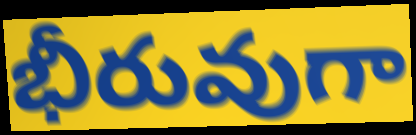
భీరువుగా